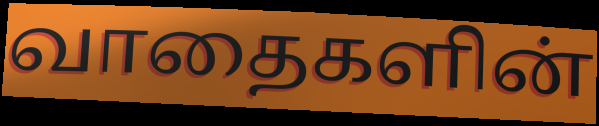
வாதைகளின்